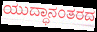
ಯುದ್ಧಾನಂತರದ